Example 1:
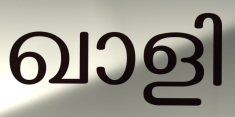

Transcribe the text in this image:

ഖാളി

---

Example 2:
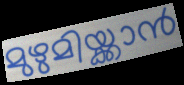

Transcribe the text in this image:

മുഴുമിയ്ക്കാൻ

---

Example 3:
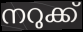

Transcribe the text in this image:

നറുക്ക്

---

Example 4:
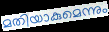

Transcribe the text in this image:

മതിയാകുമെന്നും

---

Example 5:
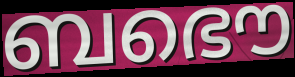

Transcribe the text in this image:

ബഭൌ